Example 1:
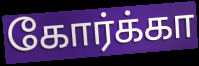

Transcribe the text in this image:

கோர்க்கா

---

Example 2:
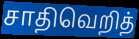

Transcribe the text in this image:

சாதிவெறித்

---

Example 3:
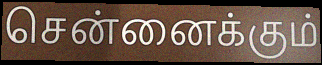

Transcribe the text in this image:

சென்னைக்கும்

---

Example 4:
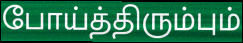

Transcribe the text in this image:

போய்த்திரும்பும்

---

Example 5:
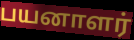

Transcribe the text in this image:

பயனாளர்